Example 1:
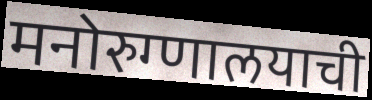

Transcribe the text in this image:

मनोरुग्णालयाची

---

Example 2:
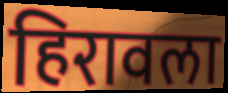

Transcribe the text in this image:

हिरावला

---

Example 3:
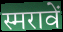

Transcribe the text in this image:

स्मरावें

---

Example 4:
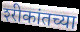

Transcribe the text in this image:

श्रीकांतच्या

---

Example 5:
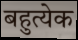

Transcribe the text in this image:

बहुत्येक